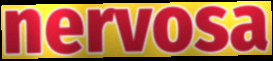
nervosa